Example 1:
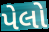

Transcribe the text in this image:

પેલો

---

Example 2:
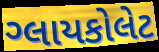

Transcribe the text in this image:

ગ્લાયકોલેટ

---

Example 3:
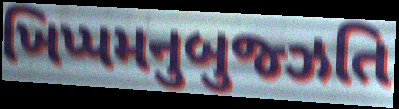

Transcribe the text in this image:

ખિપ્પમનુબુજ્ઝતિ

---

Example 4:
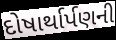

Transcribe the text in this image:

દોષાર્થાર્પણની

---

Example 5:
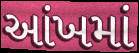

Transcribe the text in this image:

આંખમાં